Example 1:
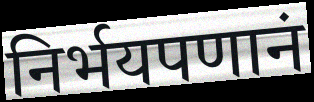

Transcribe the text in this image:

निर्भयपणानं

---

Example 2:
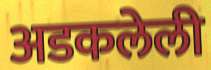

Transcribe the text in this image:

अडकलेली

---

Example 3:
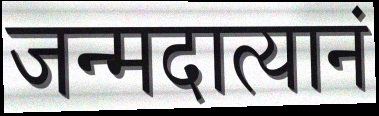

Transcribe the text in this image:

जन्मदात्यानं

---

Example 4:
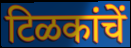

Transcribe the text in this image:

टिळकांचें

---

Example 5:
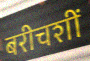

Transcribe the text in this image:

बरीचशीं